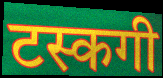
टस्कगी